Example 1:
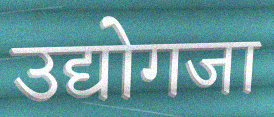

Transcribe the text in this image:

उद्योगजा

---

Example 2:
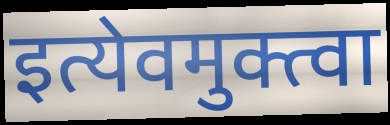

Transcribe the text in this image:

इत्येवमुक्त्वा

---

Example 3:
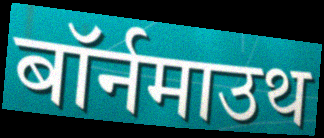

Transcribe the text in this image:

बॉर्नमाउथ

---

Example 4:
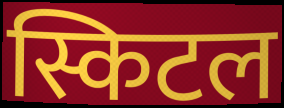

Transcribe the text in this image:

स्किटल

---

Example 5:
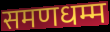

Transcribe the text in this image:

समणधम्म